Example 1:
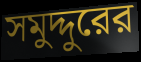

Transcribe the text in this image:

সমুদ্দুরের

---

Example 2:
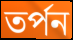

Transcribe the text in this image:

তর্পন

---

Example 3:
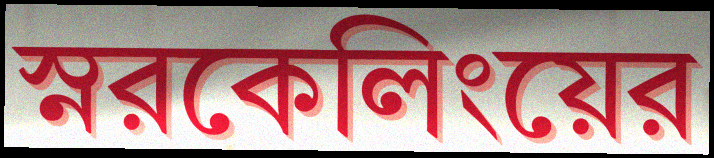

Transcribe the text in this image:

স্নরকেলিংয়ের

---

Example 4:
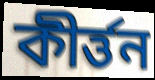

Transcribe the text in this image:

কীর্ত্তন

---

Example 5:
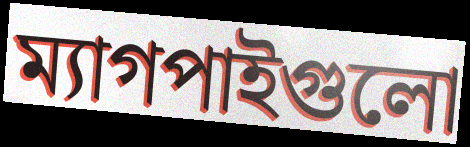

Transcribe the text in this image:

ম্যাগপাইগুলো